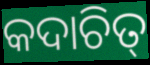
କଦାଚିତ୍